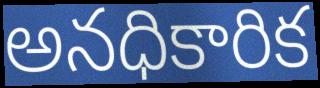
అనధికారిక